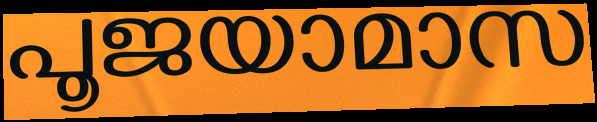
പൂജയാമാസ